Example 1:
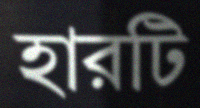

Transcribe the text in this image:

হারটি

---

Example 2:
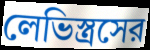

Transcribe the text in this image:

লেভিস্ত্রসের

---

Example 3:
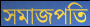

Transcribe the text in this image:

সমাজপতি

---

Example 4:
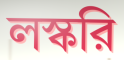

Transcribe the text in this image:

লস্করি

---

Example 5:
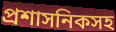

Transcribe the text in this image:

প্রশাসনিকসহ